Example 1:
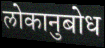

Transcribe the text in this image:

लोकानुबोध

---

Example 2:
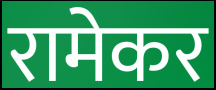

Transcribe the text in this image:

रामेकर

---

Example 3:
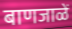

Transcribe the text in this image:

बाणजाळें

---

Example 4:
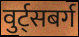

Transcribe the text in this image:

वुर्ट्सबर्ग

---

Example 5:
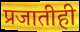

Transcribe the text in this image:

प्रजातीही